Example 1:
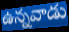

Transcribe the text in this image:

ఉన్నవాడు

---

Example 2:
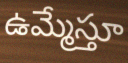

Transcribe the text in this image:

ఉమ్మేస్తూ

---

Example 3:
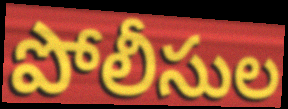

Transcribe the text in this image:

పోలీసుల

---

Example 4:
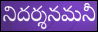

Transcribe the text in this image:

నిదర్శనమనీ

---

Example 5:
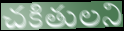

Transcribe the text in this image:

చకితులని